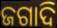
ଜଗାଦି